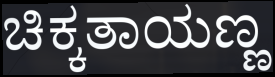
ಚಿಕ್ಕತಾಯಣ್ಣ